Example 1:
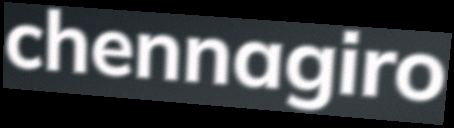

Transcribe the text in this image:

chennagiro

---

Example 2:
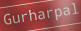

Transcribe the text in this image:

Gurharpal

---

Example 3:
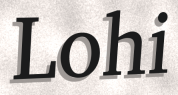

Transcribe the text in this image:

Lohi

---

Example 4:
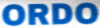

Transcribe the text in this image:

ORDO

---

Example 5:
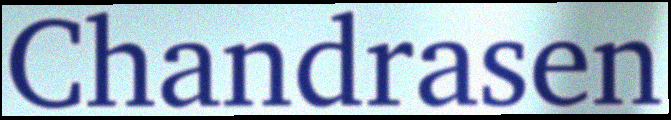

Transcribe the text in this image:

Chandrasen